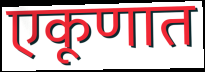
एकूणात